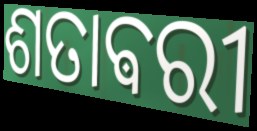
ଶତାଵରୀ